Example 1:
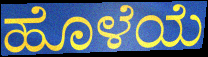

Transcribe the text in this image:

ಹೊಳೆಯೆ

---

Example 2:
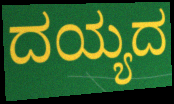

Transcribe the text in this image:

ದಯ್ಯದ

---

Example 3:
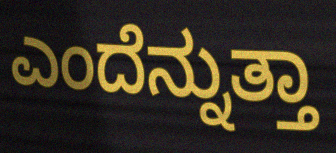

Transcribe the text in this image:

ಎಂದೆನ್ನುತ್ತಾ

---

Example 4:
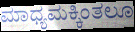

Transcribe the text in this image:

ಮಾಧ್ಯಮಕ್ಕಿಂತಲೂ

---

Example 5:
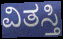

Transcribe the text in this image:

ವಿತಸ್ತಿ